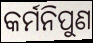
କର୍ମନିପୁଣ